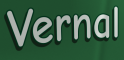
Vernal